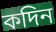
কদিন